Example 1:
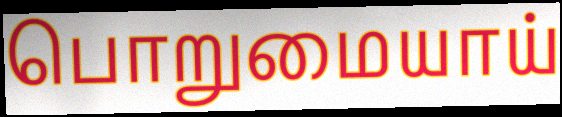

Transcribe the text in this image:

பொறுமையாய்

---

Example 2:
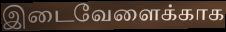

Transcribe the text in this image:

இடைவேளைக்காக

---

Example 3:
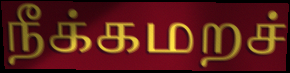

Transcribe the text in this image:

நீக்கமறச்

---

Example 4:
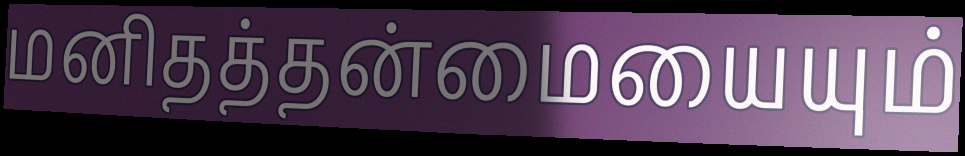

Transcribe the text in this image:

மனிதத்தன்மையையும்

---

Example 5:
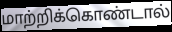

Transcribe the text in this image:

மாற்றிக்கொண்டால்